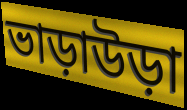
ভাড়াউড়া